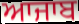
ਆਜਾਬ